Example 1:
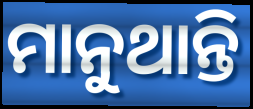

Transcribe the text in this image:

ମାନୁଥାନ୍ତି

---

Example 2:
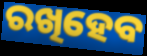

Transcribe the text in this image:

ରଖିହେବ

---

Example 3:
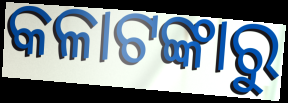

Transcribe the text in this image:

କଳାଟଙ୍କାରୁ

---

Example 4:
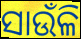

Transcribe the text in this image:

ସାଉଁଳି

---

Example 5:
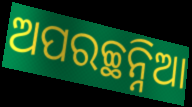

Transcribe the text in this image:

ଅପରଚ୍ଛନ୍ନିଆ